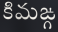
కిమఙ్గ